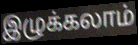
இழுக்கலாம்